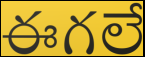
ఈగలే